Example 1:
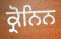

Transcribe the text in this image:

ਕ੍ਰੋਨਿਨ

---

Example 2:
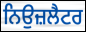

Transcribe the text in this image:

ਨਿਉਜ਼ਲੈਟਰ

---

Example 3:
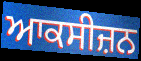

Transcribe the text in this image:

ਆਕਸੀਜ਼ਨ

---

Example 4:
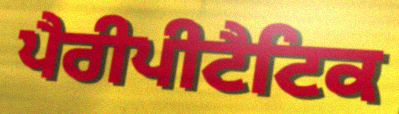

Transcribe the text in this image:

ਪੈਰੀਪੀਟੈਟਿਕ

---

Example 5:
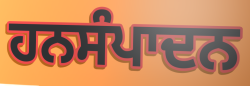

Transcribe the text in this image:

ਹਨਸੰਪਾਦਨ